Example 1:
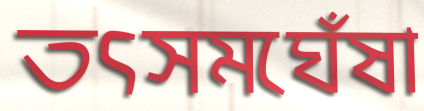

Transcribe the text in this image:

তৎসমঘেঁষা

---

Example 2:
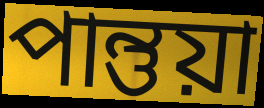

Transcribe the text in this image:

পান্তুয়া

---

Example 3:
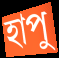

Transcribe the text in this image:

হাপু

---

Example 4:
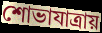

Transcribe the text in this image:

শোভাযাত্রায়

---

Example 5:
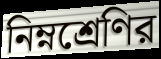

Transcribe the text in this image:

নিম্নশ্রেণির